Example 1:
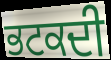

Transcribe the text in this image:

ਭਟਕਦੀ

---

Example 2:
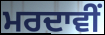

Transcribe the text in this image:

ਮਰਦਾਵੀਂ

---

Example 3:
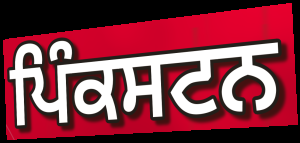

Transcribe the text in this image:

ਪਿੰਕਸਟਨ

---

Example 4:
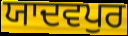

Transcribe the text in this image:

ਯਾਦਵਪੁਰ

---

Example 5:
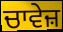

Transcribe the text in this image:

ਚਾਵੇਜ਼